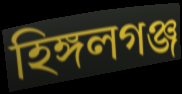
হিঙ্গলগঞ্জ